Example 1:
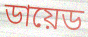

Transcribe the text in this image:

ডায়েড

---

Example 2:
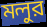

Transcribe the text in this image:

মলুর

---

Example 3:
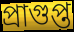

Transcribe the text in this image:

প্রাগুপ্ত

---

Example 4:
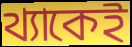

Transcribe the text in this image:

থ্যাকেই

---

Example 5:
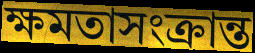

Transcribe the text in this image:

ক্ষমতাসংক্রান্ত